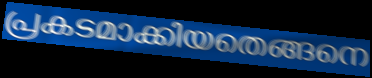
പ്രകടമാക്കിയതെങ്ങനെ